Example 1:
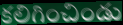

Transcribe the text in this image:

కలిగించిండు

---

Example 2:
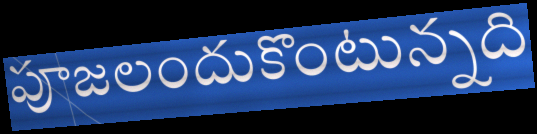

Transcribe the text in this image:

పూజలందుకొంటున్నది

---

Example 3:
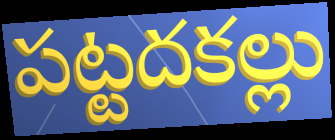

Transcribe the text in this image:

పట్టదకల్లు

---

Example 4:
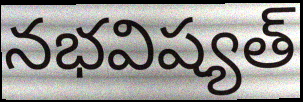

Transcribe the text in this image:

నభవిష్యత్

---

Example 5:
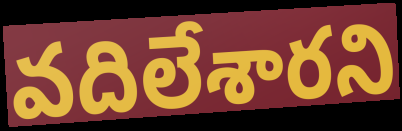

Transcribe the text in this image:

వదిలేశారని